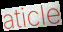
aticle